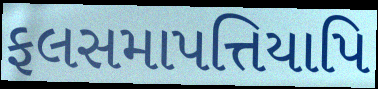
ફલસમાપત્તિયાપિ